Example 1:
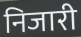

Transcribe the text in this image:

निजारी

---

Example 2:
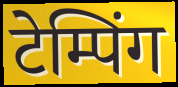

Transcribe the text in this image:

टेम्पिंग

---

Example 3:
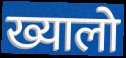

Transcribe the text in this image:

ख्यालो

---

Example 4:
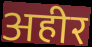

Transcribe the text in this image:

अहीर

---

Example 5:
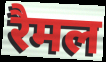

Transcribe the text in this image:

रैमल